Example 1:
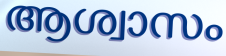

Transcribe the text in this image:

ആശ്വാസം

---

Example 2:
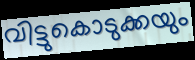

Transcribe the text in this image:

വിട്ടുകൊടുക്കയും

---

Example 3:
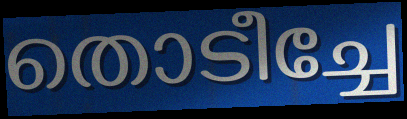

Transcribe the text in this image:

തൊടീച്ചേ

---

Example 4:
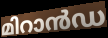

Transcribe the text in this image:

മിറാൻഡ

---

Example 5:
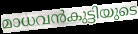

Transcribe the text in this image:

മാധവൻകുട്ടിയുടെ